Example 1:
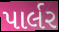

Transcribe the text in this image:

પાર્લર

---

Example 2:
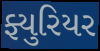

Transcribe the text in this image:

ફ્યુરિયર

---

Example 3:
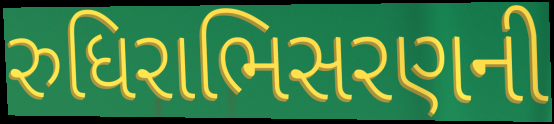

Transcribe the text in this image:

રુધિરાભિસરણની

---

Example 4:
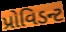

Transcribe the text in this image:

પ્રોવિડન્ટ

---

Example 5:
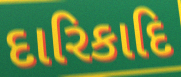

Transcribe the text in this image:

દારિકાદિ